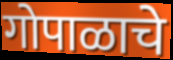
गोपाळाचे